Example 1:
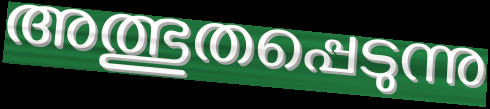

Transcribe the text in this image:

അത്ഭുതപ്പെടുന്നു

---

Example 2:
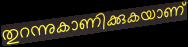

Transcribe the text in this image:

തുറന്നുകാണിക്കുകയാണ്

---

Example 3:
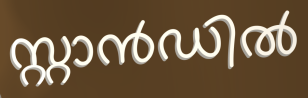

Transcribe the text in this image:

സ്റ്റാൻഡിൽ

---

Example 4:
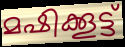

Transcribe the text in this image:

മഷിക്കൂട്ട്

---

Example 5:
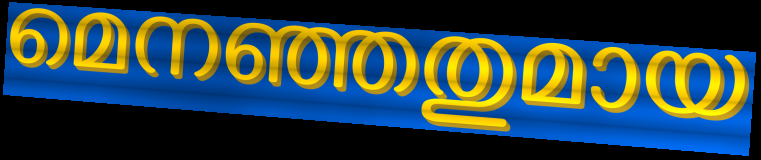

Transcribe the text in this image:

മെനഞ്ഞതുമായ